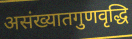
असंख्यातगुणवृद्धि